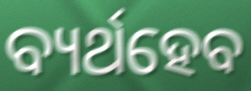
ବ୍ୟର୍ଥହେବ